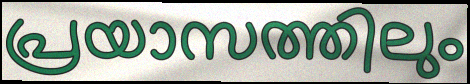
പ്രയാസത്തിലും